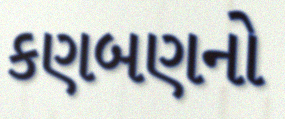
કણબણનો